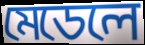
মেডেলে